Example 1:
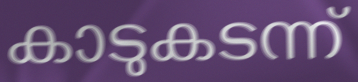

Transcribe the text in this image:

കാടുകടന്ന്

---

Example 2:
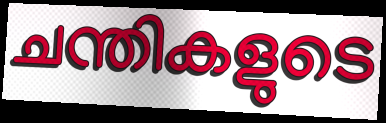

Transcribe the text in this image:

ചന്തികളുടെ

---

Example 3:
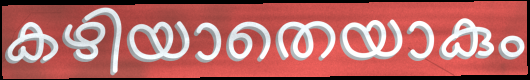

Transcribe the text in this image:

കഴിയാതെയാകും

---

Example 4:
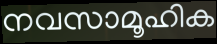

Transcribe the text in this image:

നവസാമൂഹിക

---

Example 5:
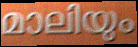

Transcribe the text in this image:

മാലിയും